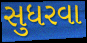
સુધરવા